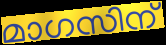
മാഗസിന്